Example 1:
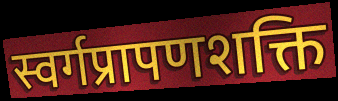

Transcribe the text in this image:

स्वर्गप्रापणशक्ति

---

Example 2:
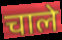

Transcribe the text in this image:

चाले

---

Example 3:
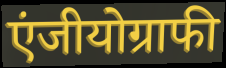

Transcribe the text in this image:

एंजीयोग्राफी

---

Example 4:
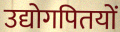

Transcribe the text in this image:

उद्योगपितयों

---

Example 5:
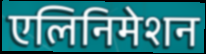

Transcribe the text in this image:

एलिनिमेशन